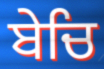
ਬੇਚਿ